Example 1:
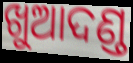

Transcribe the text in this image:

ଖୁଆଦଣ୍ଡ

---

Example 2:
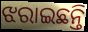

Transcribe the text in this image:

ଝରାଇଛନ୍ତି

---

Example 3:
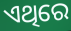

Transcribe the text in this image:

ଏଥିରେ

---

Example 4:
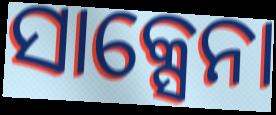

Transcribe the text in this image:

ସାକ୍ସେନା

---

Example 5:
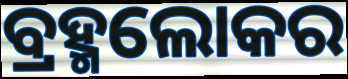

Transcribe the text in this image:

ବ୍ରହ୍ମଲୋକର